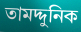
তামদ্দুনিক